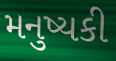
મનુષ્યકી